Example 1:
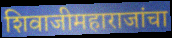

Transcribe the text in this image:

शिवाजीमहाराजांचा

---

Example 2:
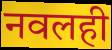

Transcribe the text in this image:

नवलही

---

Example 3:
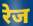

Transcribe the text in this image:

रेज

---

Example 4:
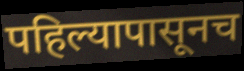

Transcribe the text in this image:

पहिल्यापासूनच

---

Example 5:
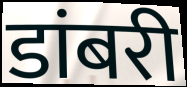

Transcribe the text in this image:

डांबरी